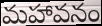
మహావనం